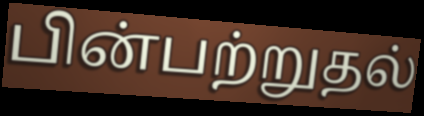
பின்பற்றுதல்